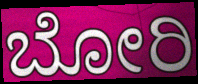
ಬೋರಿ